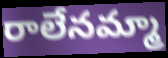
రాలేనమ్మా